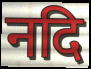
नदि